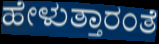
ಹೇಳುತ್ತಾರಂತೆ